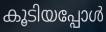
കൂടിയപ്പോൾ